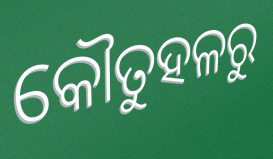
କୌତୁହଳରୁ